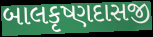
બાલકૃષ્ણદાસજી